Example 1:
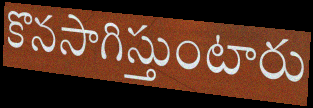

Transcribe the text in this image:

కొనసాగిస్తుంటారు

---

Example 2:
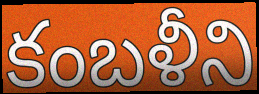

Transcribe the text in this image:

కంబళీని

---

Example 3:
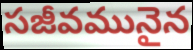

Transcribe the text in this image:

సజీవమునైన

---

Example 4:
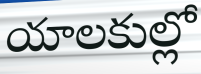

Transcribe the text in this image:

యాలకుల్లో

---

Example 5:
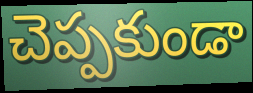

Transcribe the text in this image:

చెప్పకుండా